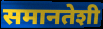
समानतेशी